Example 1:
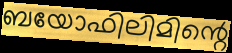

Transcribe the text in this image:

ബയോഫിലിമിന്റെ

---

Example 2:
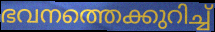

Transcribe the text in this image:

ഭവനത്തെക്കുറിച്ച്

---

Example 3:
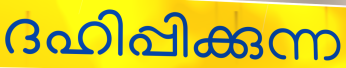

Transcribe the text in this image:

ദഹിപ്പിക്കുന്ന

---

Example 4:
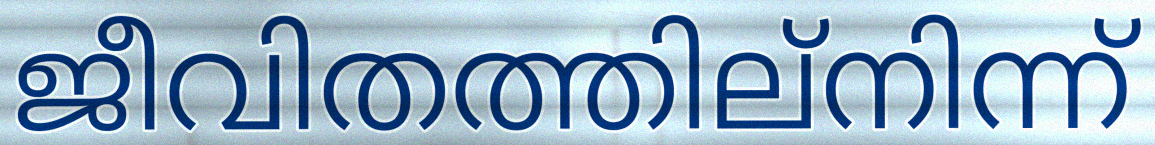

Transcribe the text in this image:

ജീവിതത്തില്നിന്ന്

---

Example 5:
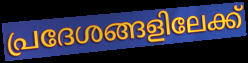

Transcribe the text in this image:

പ്രദേശങ്ങളിലേക്ക്